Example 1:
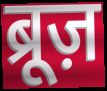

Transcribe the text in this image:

ब्रूज़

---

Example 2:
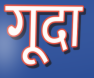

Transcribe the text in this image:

गूदा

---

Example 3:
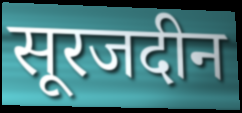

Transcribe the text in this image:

सूरजदीन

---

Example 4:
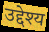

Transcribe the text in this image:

उद्देश्‍य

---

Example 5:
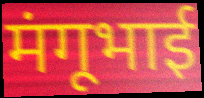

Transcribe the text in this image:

मंगूभाई